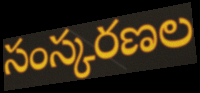
సంస్కరణల